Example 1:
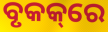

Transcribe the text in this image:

ବୃକକ୍‌ରେ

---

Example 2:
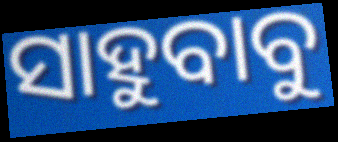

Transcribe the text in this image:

ସାହୁବାବୁ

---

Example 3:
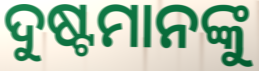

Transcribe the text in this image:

ଦୁଷ୍ଟମାନଙ୍କୁ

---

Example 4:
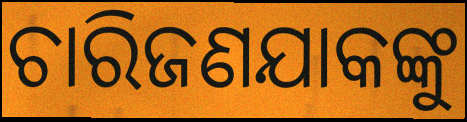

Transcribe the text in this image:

ଚାରିଜଣଯାକଙ୍କୁ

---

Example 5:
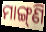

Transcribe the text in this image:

ମାଙ୍ଗ୍‌ଣି